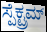
ಸ್ಪೆಕ್ಟ್ರಮ್